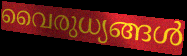
വൈരുധ്യങ്ങൾ